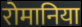
रोमानिया